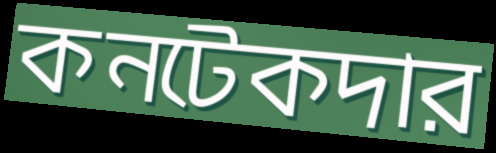
কনটেকদার